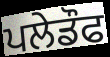
ਪਲੇਡੌਫ